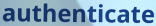
authenticate